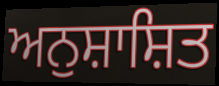
ਅਨੁਸ਼ਾਸ਼ਿਤ